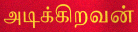
அடிக்கிறவன்